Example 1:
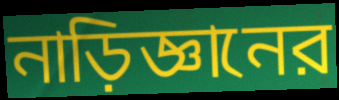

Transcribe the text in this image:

নাড়িজ্ঞানের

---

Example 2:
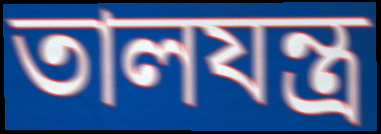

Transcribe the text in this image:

তালযন্ত্র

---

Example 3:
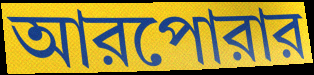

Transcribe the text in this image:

আরপোরার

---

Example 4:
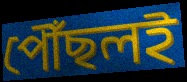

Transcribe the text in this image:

পৌঁছলই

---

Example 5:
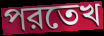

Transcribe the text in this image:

পরতেখ